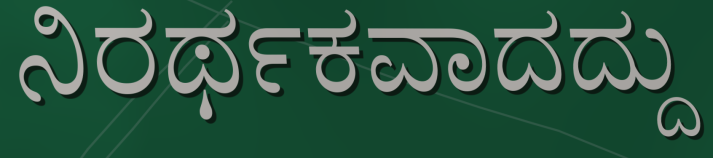
ನಿರರ್ಥಕವಾದದ್ದು